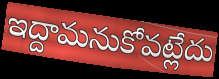
ఇద్దామనుకోవట్లేదు